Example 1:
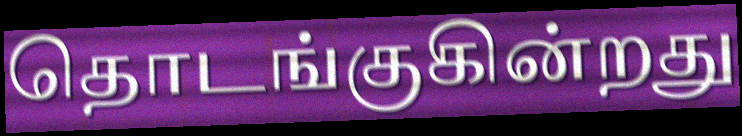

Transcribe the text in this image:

தொடங்குகின்றது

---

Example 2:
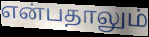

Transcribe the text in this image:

என்பதாலும்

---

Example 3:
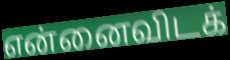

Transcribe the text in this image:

என்னைவிடக்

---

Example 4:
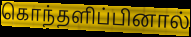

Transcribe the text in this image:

கொந்தளிப்பினால்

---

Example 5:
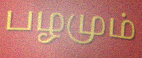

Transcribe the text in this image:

பழமும்